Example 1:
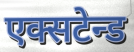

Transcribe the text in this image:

एक्सटेन्ड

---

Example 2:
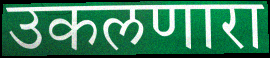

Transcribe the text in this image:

उकलणारा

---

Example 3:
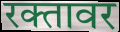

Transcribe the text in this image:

रक्तावर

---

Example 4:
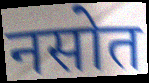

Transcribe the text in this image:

नसोत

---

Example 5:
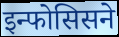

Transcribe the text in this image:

इन्फोसिसने